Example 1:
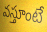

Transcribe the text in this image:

వస్తూంటే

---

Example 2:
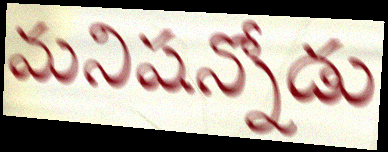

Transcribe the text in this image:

మనిషన్నోడు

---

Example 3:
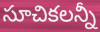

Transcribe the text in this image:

సూచికలన్నీ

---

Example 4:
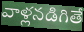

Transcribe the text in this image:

వాళ్లనడిగితే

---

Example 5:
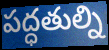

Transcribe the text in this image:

పద్ధతుల్ని